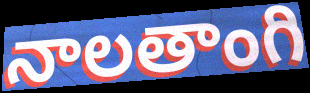
నాలతాంగి